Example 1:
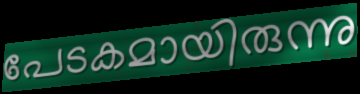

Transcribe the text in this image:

പേടകമായിരുന്നു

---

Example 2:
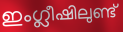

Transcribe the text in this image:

ഇംഗ്ലീഷിലുണ്ട്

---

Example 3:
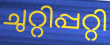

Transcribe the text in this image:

ചുറ്റിപ്പറ്റി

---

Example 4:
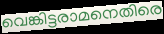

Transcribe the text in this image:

വെങ്കിട്ടരാമനെതിരെ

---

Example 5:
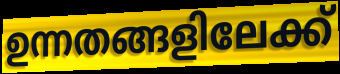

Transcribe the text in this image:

ഉന്നതങ്ങളിലേക്ക്